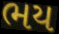
ભય